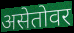
असेतोवर